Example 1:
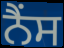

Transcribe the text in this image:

ਨੈਂਸ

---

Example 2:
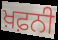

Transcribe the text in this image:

ਖ਼ਫ਼ਨੀ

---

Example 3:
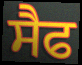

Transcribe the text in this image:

ਸੈਫ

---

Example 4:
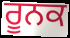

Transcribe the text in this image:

ਰੂਨਕ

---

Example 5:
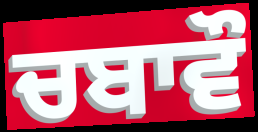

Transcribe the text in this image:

ਚਬਾਵੌ